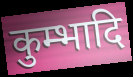
कुम्भादि